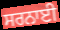
ਸਰਨਾਈ